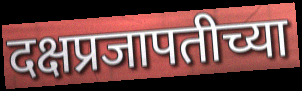
दक्षप्रजापतीच्या